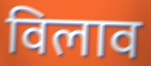
विलाव